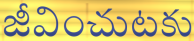
జీవించుటకు